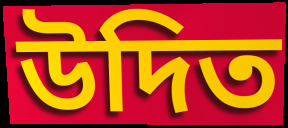
উদিত